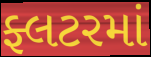
ફ્લટરમાં